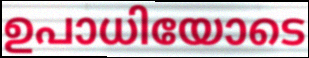
ഉപാധിയോടെ